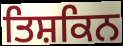
ਤਿਸ਼ਕਿਨ